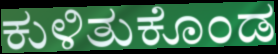
ಕುಳಿತುಕೊಂಡ